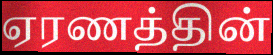
ஏரணத்தின்